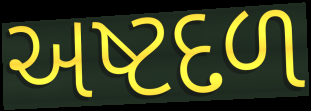
અષ્ટદળ